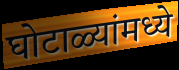
घोटाळ्यांमध्ये